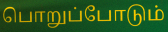
பொறுப்போடும்